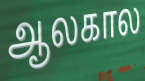
ஆலகால